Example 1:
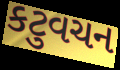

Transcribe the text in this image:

કટુવચન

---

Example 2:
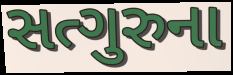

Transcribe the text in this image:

સત્ગુરુના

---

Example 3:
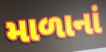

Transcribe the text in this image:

માળાનાં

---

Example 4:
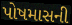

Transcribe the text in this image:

પોષમાસની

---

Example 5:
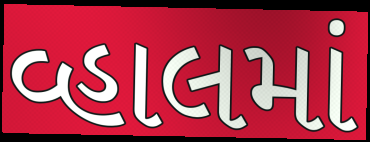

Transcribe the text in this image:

વ્હાલમાં